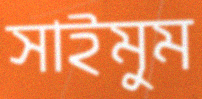
সাইমুম